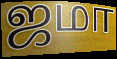
ஜமா